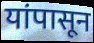
यांपासून